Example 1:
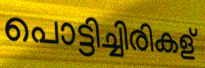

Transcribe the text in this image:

പൊട്ടിച്ചിരികള്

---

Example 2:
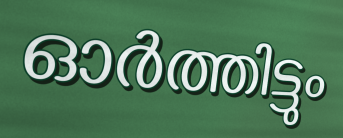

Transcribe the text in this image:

ഓർത്തിട്ടും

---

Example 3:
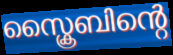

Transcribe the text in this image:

സ്ക്രൈബിന്റെ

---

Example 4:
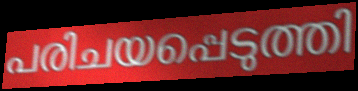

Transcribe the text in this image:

പരിചയപ്പെടുത്തി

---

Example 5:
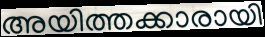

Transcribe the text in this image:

അയിത്തക്കാരായി